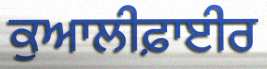
ਕੁਆਲੀਫ਼ਾਈਰ